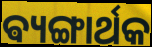
ଵ୍ୟଙ୍ଗାର୍ଥକ